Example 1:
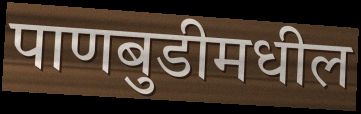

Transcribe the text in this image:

पाणबुडीमधील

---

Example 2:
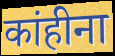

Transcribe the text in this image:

कांहीना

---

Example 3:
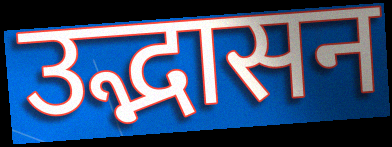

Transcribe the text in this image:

उद्भासन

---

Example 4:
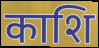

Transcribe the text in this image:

काशि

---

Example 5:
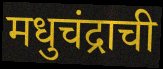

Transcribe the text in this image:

मधुचंद्राची